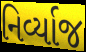
નિર્વ્યાજ